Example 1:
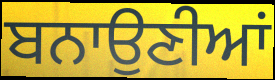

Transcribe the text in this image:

ਬਨਾਉਣੀਆਂ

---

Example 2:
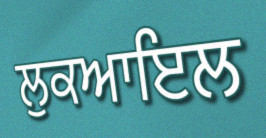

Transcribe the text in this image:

ਲੁਕਆਇਲ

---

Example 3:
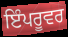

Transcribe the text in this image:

ਇੰਪਰੂਵਰ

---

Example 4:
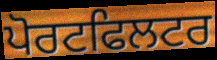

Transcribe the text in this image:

ਪੋਰਟਫਿਲਟਰ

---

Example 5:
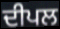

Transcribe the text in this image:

ਦੀਪਲ